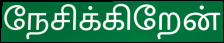
நேசிக்கிறேன்